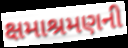
ક્ષમાશ્રમણની